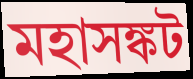
মহাসঙ্কট